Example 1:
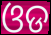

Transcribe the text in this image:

ଓଡ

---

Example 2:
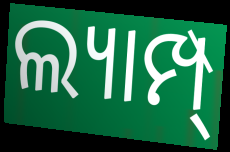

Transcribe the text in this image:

ଲ୍ୟାମ୍ପ୍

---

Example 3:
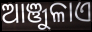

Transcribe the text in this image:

ଆଞ୍ଜୁଳାଏ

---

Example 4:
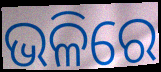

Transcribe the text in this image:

ଭଳିରେ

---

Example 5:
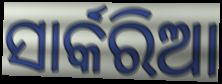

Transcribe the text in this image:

ସାର୍କରିଆ